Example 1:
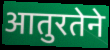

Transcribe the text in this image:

आतुरतेने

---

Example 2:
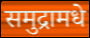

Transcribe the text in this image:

समुद्रामधे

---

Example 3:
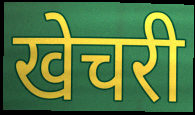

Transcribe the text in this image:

खेचरी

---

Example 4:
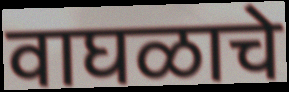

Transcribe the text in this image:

वाघळाचे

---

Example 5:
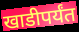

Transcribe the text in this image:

खाडीपर्यंत